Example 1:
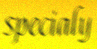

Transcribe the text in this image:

specialy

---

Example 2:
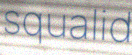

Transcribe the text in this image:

squalid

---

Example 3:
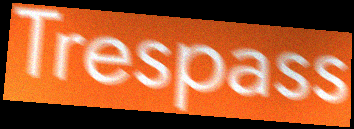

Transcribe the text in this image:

Trespass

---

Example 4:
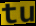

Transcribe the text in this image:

tu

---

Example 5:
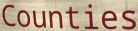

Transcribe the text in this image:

Counties